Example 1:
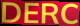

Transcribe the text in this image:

DERC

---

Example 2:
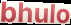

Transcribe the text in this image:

bhulo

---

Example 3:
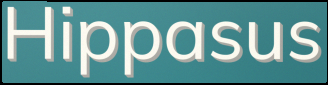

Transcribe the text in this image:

Hippasus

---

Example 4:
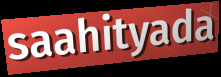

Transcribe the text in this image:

saahityada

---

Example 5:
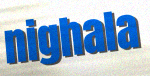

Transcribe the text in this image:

nighala